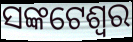
ସଙ୍କଟେଶ୍ୱର